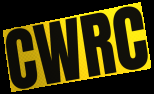
CWRC